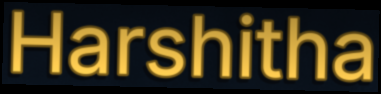
Harshitha